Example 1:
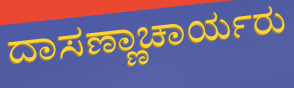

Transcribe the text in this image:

ದಾಸಣ್ಣಾಚಾರ್ಯರು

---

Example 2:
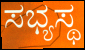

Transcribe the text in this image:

ಸಭ್ಯಸ್ಥ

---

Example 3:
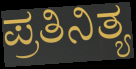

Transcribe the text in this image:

ಪ್ರತಿನಿತ್ಯ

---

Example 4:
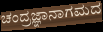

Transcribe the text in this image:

ಚಂದ್ರಜ್ಞಾನಾಗಮದ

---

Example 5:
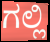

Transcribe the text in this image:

ಗಲ್ಲಿ